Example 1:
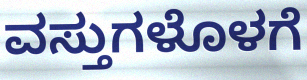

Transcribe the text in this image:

ವಸ್ತುಗಳೊಳಗೆ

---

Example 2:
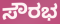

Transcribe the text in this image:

ಸೌರಭ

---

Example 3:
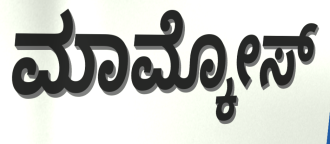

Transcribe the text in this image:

ಮಾಮ್ಕೋಸ್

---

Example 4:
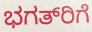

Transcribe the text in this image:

ಭಗತ್‍ರಿಗೆ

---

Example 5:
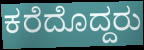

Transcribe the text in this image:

ಕರೆದೊದ್ದರು